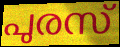
പുരസ്